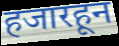
हजारहून